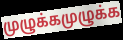
முழுக்கமுழுக்க